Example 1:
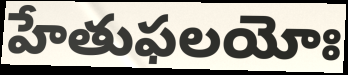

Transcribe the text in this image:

హేతుఫలయోః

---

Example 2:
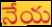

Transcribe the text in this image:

నేయ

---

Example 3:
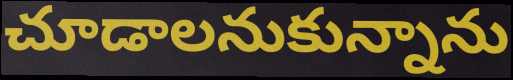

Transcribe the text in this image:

చూడాలనుకున్నాను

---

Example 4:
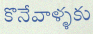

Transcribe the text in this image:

కొనేవాళ్ళకు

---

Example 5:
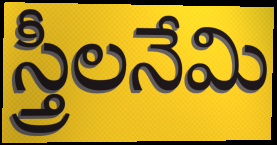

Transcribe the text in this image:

స్త్రీలనేమి